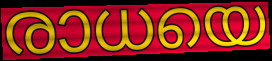
രാധയെ